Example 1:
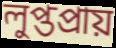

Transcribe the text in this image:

লুপ্তপ্ৰায়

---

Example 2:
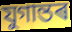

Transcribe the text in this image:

যুগান্তৰ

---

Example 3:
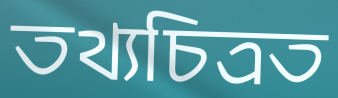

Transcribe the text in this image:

তথ্যচিত্ৰত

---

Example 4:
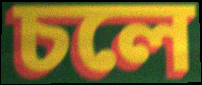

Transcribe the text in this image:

চলে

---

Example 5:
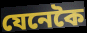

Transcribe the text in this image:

যেনেকৈ